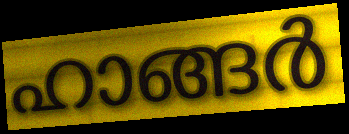
ഹാങ്ങർ